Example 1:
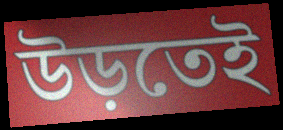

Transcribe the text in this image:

উড়তেই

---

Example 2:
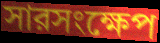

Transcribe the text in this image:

সারসংক্ষেপ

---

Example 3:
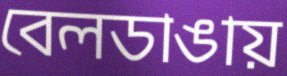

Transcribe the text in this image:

বেলডাঙায়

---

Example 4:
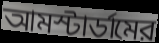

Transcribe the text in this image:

আমস্টার্ডামের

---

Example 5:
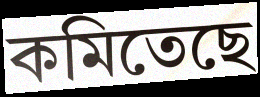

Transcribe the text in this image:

কমিতেছে